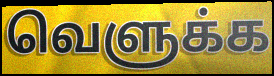
வெளுக்க